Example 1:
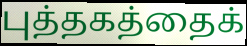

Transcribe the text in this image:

புத்தகத்தைக்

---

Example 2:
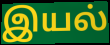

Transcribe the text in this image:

இயல்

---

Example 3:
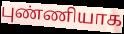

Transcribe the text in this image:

புண்ணியாக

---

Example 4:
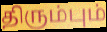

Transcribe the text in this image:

திரும்பும்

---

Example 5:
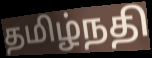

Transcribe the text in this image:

தமிழ்நதி